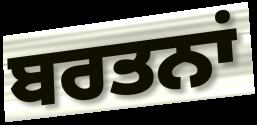
ਬਰਤਨਾਂ